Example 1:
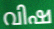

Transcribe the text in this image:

വിഷ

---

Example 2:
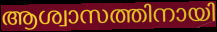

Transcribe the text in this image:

ആശ്വാസത്തിനായി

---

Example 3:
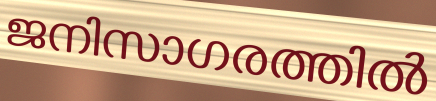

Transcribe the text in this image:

ജനിസാഗരത്തിൽ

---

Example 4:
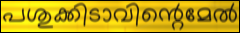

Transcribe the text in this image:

പശുക്കിടാവിന്റെമേൽ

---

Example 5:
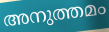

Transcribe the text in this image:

അനുത്തമം